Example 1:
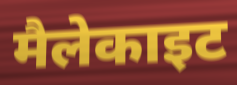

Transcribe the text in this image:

मैलेकाइट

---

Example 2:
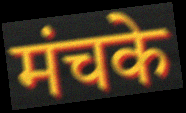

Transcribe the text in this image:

मंचके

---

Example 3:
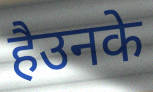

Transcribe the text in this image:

हैउनके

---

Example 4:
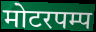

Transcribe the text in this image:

मोटरपम्प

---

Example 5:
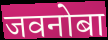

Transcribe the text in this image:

जवनोबा